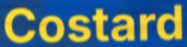
Costard